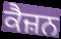
ਕੈਜ਼ਨ